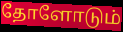
தோளோடும்